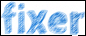
fixer